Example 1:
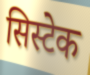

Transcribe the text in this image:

सिस्टेक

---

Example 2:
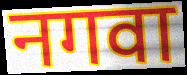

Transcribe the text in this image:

नगवा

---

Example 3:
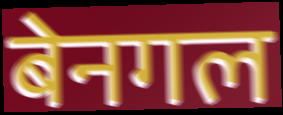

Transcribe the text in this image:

बेनगल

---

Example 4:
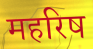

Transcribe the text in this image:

महरिष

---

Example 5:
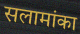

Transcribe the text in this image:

सलामांका